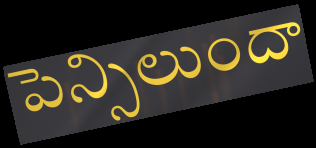
పెన్సిలుందా